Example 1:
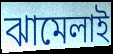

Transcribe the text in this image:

ঝামেলাই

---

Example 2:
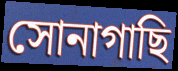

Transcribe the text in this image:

সোনাগাছি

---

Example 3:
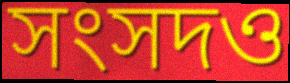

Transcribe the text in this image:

সংসদও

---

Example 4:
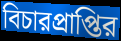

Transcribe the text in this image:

বিচারপ্রাপ্তির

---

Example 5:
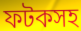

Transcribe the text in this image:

ফটকসহ